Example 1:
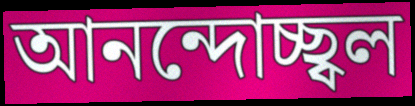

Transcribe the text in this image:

আনন্দোচ্ছ্বল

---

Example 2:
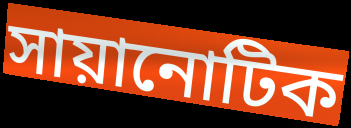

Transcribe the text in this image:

সায়ানোটিক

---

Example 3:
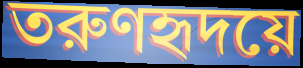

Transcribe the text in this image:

তরুণহৃদয়ে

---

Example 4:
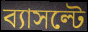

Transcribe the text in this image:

ব্যাসল্টে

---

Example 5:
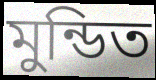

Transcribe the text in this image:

মুন্ডিত